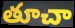
తూచా